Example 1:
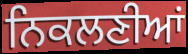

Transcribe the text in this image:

ਨਿਕਲਣੀਆਂ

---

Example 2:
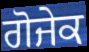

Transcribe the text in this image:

ਗੋਜੇਕ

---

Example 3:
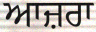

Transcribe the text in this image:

ਆਜ਼ਰਾ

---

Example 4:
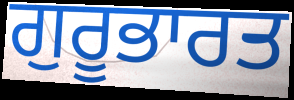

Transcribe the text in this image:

ਗੁਰੂਭਾਰਤ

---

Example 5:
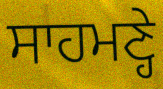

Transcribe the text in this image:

ਸਾਹਮਣ੍ਹੇ